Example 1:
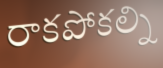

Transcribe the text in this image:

రాకపోకల్ని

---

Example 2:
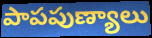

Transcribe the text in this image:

పాపపుణ్యాలు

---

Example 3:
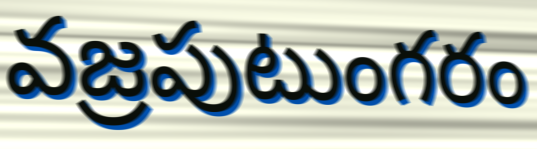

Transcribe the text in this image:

వజ్రపుటుంగరం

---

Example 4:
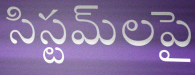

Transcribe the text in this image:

సిస్టమ్‌లపై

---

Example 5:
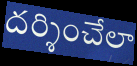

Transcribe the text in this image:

దర్శించేలా